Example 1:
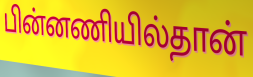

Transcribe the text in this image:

பின்னணியில்தான்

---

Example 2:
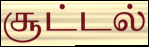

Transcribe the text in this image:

சூட்டல்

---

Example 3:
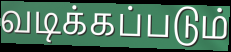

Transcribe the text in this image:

வடிக்கப்படும்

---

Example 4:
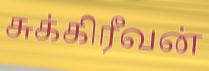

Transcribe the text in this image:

சுக்கிரீவன்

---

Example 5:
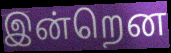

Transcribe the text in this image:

இன்றென